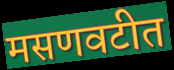
मसणवटीत